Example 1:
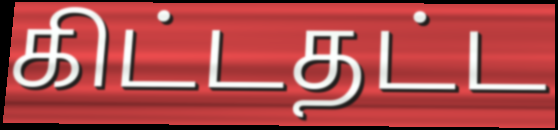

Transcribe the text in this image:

கிட்டதட்ட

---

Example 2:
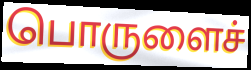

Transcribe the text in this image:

பொருளைச்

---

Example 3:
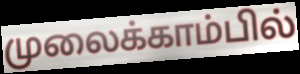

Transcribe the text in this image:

முலைக்காம்பில்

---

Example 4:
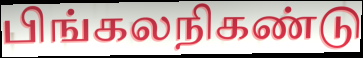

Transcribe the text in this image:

பிங்கலநிகண்டு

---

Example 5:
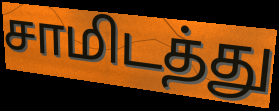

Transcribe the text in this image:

சாமிடத்து